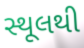
સ્થૂલથી